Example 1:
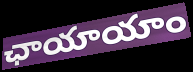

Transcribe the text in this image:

ఛాయాయాం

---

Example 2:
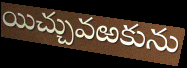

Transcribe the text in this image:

యిచ్చువఱకును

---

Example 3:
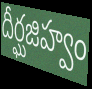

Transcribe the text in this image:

దీర్ఘజిహ్వం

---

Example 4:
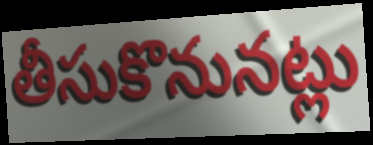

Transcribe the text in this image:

తీసుకొనునట్లు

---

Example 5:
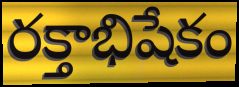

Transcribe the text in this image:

రక్తాభిషేకం